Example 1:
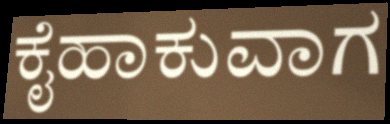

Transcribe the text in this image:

ಕೈಹಾಕುವಾಗ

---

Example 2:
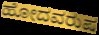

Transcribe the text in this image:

ಹೋದವರುಷ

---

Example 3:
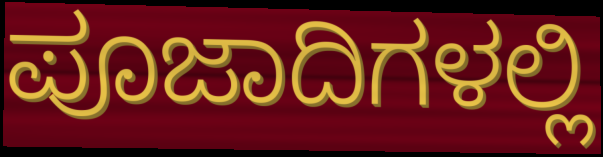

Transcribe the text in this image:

ಪೂಜಾದಿಗಳಲ್ಲಿ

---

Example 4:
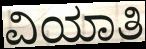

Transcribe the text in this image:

ವಿಯಾತಿ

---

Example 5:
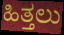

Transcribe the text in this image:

ಹಿತ್ತಲು